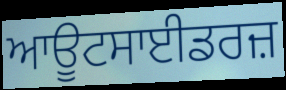
ਆਊਟਸਾਈਡਰਜ਼